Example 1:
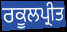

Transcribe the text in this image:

ਰਕੂਲਪ੍ਰੀਤ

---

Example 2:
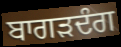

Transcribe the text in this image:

ਬਾਗੜਦੰਗ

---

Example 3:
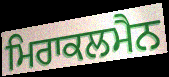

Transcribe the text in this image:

ਮਿਰਾਕਲਮੈਨ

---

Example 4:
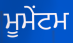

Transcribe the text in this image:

ਮੂਮੇਂਟਮ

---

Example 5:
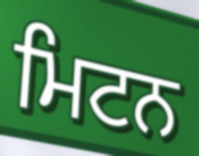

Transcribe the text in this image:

ਮਿਟਨ